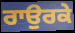
ਰਾਉਰਕੇ